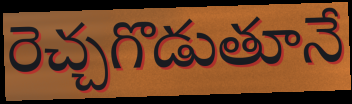
రెచ్చగొడుతూనే